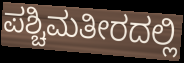
ಪಶ್ಚಿಮತೀರದಲ್ಲಿ